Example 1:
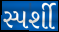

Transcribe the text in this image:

સ્પર્શી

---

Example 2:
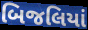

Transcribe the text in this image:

બિજલિયાં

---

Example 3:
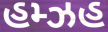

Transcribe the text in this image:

હમ્ઝહ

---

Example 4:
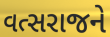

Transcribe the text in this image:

વત્સરાજને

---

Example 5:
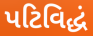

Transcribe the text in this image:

પટિવિદ્ધં